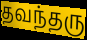
தவந்தரு